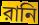
রানি